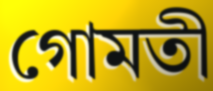
গোমতী